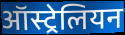
ऑस्ट्रेलियन